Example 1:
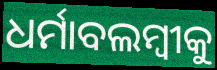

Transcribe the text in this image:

ଧର୍ମାବଲମ୍ବୀକୁ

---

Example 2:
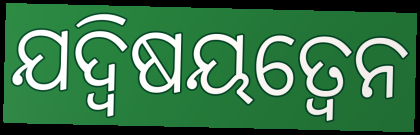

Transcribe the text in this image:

ଯଦ୍ଵିଷୟତ୍ଵେନ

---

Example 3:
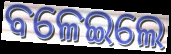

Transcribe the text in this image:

ବଳେଇଲେ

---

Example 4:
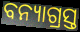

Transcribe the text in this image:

ବନ୍ୟାଗ୍ରସ୍ତ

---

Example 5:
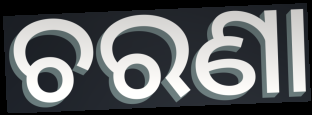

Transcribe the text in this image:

ଚରଣା